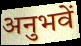
अनुभवें